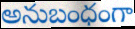
అనుబంధంగా